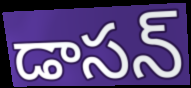
డాసన్